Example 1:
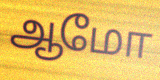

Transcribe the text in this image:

ஆமோ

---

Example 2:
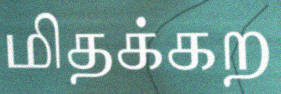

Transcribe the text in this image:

மிதக்கற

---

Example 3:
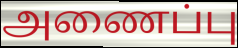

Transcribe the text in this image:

அணைப்பு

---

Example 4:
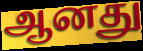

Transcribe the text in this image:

ஆனது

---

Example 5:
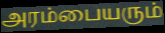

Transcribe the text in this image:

அரம்பையரும்